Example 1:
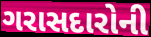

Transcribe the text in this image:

ગરાસદારોની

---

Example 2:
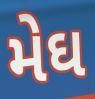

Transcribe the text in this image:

મેઘ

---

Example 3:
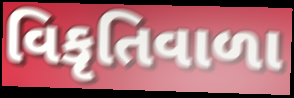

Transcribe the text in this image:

વિકૃતિવાળા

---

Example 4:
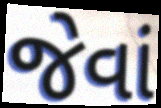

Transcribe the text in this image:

જેવાં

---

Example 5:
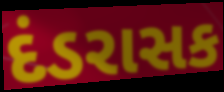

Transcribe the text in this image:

દંડરાસક